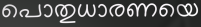
പൊതുധാരണയെ